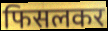
फिसलकर